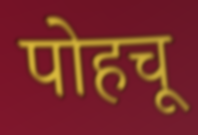
पोहचू